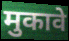
मुकावे